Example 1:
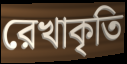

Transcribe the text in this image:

রেখাকৃতি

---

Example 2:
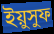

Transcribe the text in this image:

ইয়ুসুফ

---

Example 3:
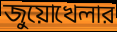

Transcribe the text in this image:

জুয়োখেলার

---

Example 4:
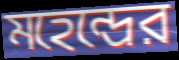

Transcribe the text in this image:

মহেন্দ্রের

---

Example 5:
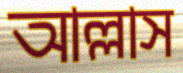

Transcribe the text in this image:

আল্লাস